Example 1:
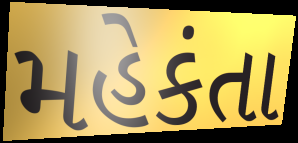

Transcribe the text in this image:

મહેકંતા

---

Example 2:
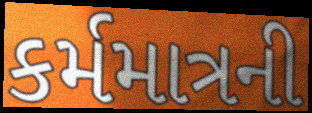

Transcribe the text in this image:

કર્મમાત્રની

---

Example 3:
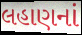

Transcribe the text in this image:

લહાણનાં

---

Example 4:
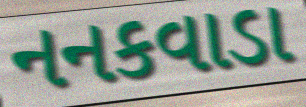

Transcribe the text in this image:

નનકવાડા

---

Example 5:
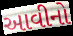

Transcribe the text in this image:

આવીનો